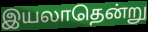
இயலாதென்று